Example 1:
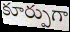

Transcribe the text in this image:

కూర్పుగా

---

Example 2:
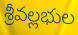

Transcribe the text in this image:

శ్రీవల్లభుల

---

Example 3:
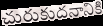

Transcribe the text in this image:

చురుకుదనానికి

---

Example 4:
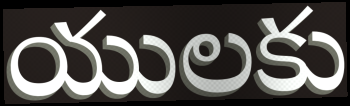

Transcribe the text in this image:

యులకు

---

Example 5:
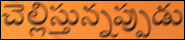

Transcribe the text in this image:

చెల్లిస్తున్నప్పుడు